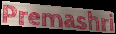
Premashri